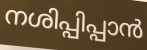
നശിപ്പിപ്പാൻ